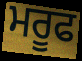
ਮਰੂਫ